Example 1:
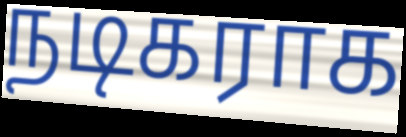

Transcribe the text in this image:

நடிகராக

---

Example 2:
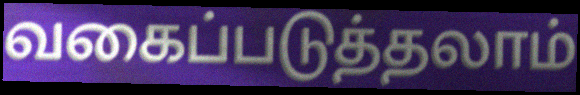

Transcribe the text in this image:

வகைப்படுத்தலாம்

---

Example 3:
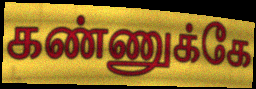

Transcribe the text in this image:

கண்ணுக்கே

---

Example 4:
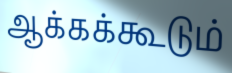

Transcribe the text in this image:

ஆக்கக்கூடும்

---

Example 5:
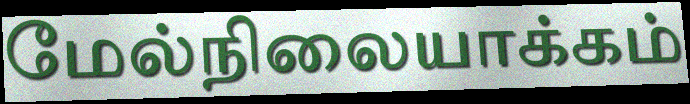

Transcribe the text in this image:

மேல்நிலையாக்கம்